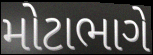
મોટાભાગે